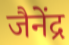
जैनेंद्र